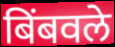
बिंबवले